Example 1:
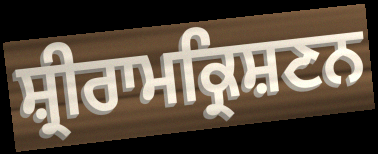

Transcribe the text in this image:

ਸ਼੍ਰੀਰਾਮਕ੍ਰਿਸ਼ਣਨ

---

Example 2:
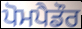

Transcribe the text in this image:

ਪੋਮਪੈਡੌਰ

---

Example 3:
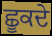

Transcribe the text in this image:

ਛੂਕਦੇ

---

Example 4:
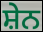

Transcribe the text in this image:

ਸ਼ੇਨ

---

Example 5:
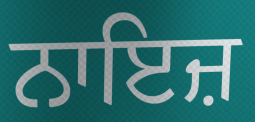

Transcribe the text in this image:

ਨਾਇਜ਼